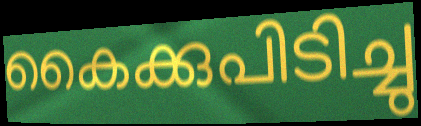
കൈക്കുപിടിച്ചു